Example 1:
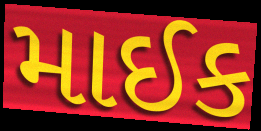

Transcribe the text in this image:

માઈક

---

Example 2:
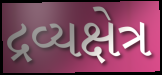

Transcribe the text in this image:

દ્રવ્યક્ષેત્ર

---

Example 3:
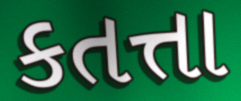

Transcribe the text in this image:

કતત્તા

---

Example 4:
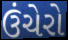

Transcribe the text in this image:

ઉંચેરો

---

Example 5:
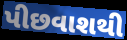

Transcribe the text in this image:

પીછવાશથી